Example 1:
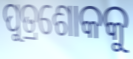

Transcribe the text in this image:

ପୁତ୍ରଶୋକକୁ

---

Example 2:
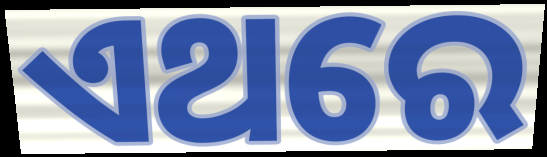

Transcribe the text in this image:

ଏଥରେ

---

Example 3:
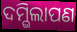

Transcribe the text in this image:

ଦମ୍ଭିଲାପଣ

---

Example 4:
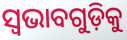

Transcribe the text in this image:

ସ୍ୱଭାବଗୁଡ଼ିକୁ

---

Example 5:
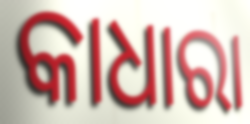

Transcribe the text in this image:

କାଧାରା